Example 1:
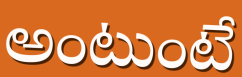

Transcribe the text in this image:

అంటుంటే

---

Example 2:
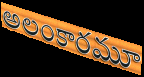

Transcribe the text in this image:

అలంకారమూ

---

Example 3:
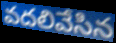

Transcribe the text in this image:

వదలివేసిన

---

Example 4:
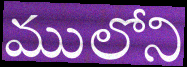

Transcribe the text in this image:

ములోని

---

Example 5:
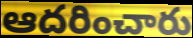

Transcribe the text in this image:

ఆదరించారు